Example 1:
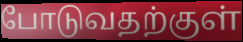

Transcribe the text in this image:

போடுவதற்குள்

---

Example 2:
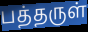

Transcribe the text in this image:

பத்தருள்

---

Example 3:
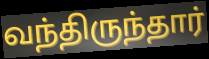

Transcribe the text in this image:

வந்திருந்தார்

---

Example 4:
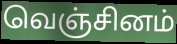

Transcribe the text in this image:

வெஞ்சினம்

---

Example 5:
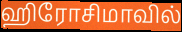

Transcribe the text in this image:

ஹிரோசிமாவில்